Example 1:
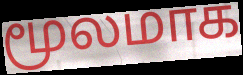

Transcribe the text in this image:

மூலமாக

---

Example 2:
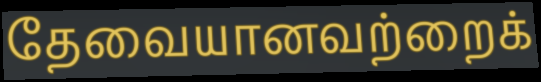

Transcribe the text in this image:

தேவையானவற்றைக்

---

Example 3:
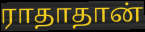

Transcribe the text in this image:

ராதாதான்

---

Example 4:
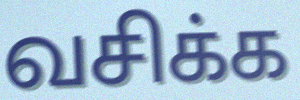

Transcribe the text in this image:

வசிக்க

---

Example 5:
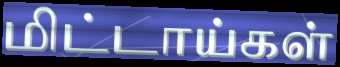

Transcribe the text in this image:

மிட்டாய்கள்